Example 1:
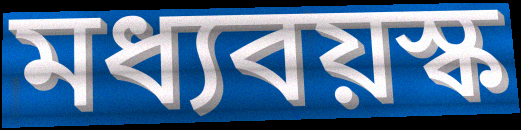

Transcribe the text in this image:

মধ্যবয়স্ক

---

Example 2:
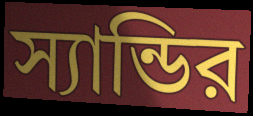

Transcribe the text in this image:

স্যান্ডির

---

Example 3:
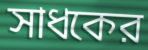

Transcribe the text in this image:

সাধকের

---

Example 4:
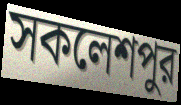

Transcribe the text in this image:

সকলেশপুর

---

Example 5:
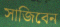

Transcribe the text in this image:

সাজিবেন